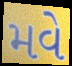
મવે